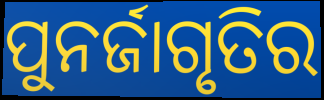
ପୁନର୍ଜାଗୃତିର